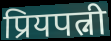
प्रियपत्नी